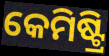
କେମିଷ୍ଟ୍ରି